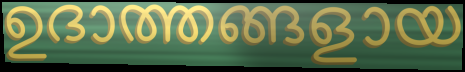
ഉദാത്തങ്ങളായ